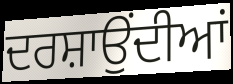
ਦਰਸ਼ਾਉਂਦੀਆਂ